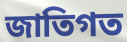
জাতিগত